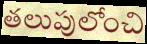
తలుపులోంచి